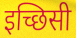
इच्छिसी